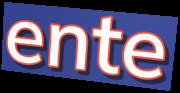
ente